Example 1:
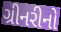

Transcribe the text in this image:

ગ્રીનરીનો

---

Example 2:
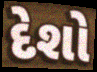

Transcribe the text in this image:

દેશો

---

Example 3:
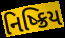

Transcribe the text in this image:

નિષ્ક્રિય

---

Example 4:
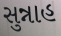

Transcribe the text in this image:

સુન્નાહ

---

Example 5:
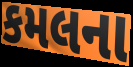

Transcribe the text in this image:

કમલના